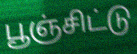
பூஞ்சிட்டு